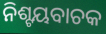
ନିଶ୍ଟୟବାଚକ